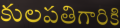
కులపతిగారికి